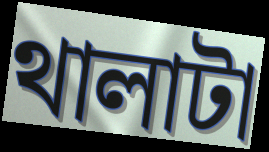
থালাটা